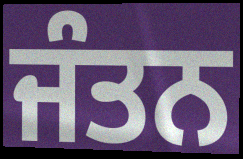
ਜੰਤਨ